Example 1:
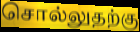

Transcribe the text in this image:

சொல்லுதற்கு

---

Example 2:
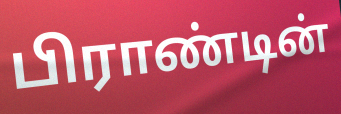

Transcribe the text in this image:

பிராண்டின்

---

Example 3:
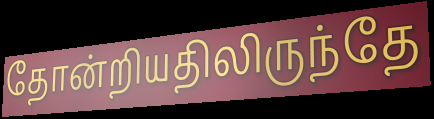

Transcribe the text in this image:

தோன்றியதிலிருந்தே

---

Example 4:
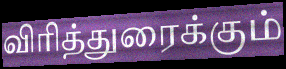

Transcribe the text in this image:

விரித்துரைக்கும்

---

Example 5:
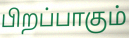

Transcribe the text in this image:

பிறப்பாகும்